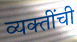
व्‍यक्‍तींची